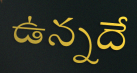
ఉన్నదే